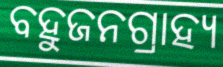
ବହୁଜନଗ୍ରାହ୍ୟ